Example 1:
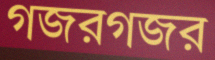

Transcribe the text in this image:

গজরগজর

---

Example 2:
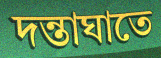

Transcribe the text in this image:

দন্তাঘাতে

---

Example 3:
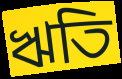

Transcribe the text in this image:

ঋতি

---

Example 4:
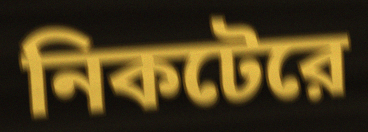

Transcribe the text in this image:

নিকটেরে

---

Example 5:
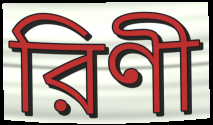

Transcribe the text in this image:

রিণী